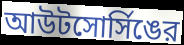
আউটসোর্সিঙের